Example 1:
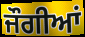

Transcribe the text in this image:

ਜੌਗੀਆਂ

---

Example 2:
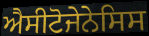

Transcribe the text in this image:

ਐਸੀਟੋਜੇਨੇਸਿਸ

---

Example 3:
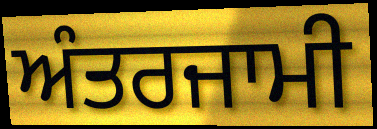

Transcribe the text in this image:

ਅੰਤਰਜਾਮੀ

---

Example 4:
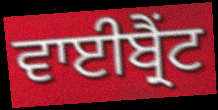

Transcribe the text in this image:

ਵਾਈਬ੍ਰੈਂਟ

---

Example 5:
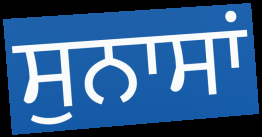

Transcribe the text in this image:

ਸੁਨਾਸਾਂ